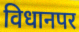
विधानपर